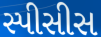
સ્પીસીસ